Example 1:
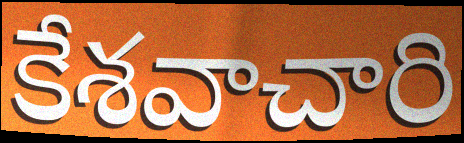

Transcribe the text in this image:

కేశవాచారి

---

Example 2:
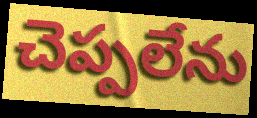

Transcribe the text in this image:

చెప్పలేను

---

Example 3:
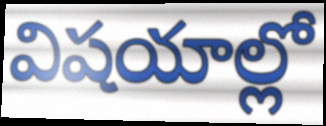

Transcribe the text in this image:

విషయాల్లో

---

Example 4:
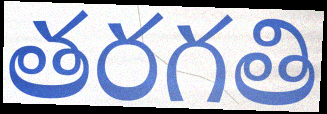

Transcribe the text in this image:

తరగతి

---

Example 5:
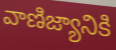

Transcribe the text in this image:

వాణిజ్యానికి